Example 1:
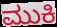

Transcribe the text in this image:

ಮುಕಿ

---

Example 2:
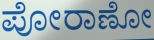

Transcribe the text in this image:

ಪೋರಾಣೋ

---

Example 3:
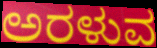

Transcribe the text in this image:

ಅರಳುವ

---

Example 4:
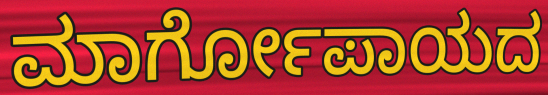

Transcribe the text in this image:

ಮಾರ್ಗೋಪಾಯದ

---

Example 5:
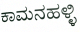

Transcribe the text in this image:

ಕಾಮನಹಳ್ಳಿ